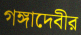
গঙ্গাদেবীর